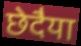
छेदैया